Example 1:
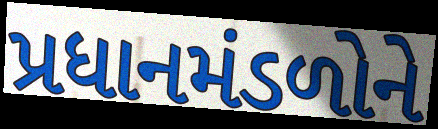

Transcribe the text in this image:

પ્રધાનમંડળોને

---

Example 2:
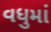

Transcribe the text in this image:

વધુમાં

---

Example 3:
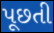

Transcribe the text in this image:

પૂછતી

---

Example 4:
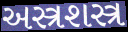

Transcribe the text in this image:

અસ્ત્રશસ્ત્ર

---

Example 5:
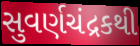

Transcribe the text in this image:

સુવર્ણચંદ્રકથી